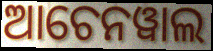
ଆଚେନୱାଲ